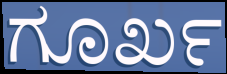
ಗೂರ್ಖ